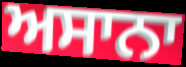
ਅਸਾਨਾ